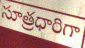
సూత్రధారిగా